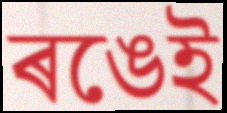
ৰঙেই